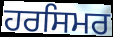
ਹਰਸਿਮਰ